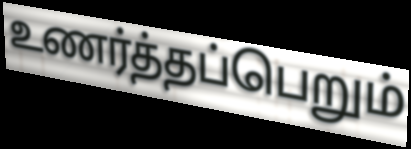
உணர்த்தப்பெறும்